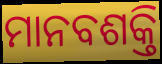
ମାନବଶକ୍ତି